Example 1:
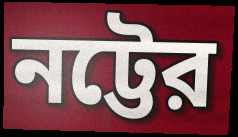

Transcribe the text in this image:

নট্টের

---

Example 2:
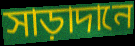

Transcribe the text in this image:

সাড়াদানে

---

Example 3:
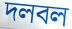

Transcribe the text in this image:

দলবল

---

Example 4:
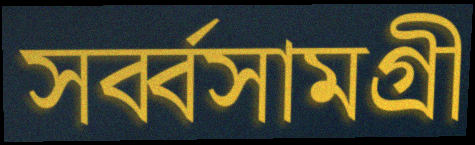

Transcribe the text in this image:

সর্ব্বসামগ্রী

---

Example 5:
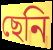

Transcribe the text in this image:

ছেনি